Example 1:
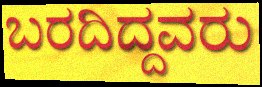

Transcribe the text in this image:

ಬರದಿದ್ದವರು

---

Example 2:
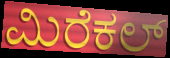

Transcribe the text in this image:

ಮಿರೆಕಲ್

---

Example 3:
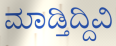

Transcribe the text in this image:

ಮಾಡ್ತಿದ್ದಿವಿ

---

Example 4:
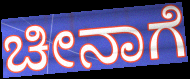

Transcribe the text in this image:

ಚೀನಾಗೆ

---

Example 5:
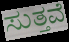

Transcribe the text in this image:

ಸುತ್ತವೆ